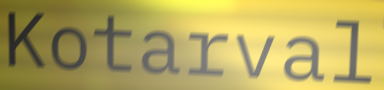
Kotarval